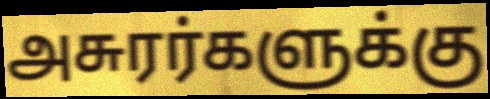
அசுரர்களுக்கு